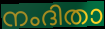
നംദിതാ